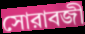
সোরাবজী